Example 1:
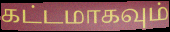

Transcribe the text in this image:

கட்டமாகவும்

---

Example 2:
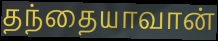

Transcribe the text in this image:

தந்தையாவான்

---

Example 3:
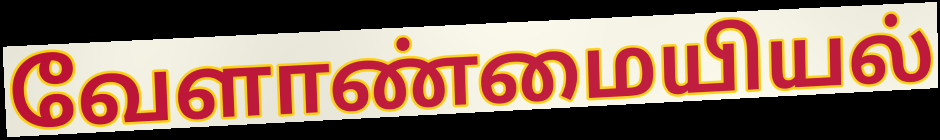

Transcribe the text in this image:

வேளாண்மையியல்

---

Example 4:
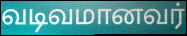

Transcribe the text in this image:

வடிவமானவர்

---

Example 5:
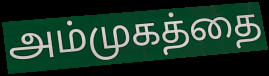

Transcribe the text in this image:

அம்முகத்தை